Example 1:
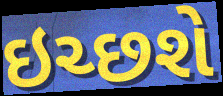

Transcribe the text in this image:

ઇચ્છશે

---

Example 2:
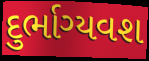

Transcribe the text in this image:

દુર્ભાગ્યવશ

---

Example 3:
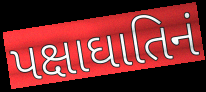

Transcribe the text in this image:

પક્ષાઘાતિનં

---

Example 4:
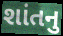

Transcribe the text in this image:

શાંતનુ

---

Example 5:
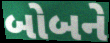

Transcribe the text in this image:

બોબને